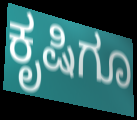
ಕೃಷಿಗೂ